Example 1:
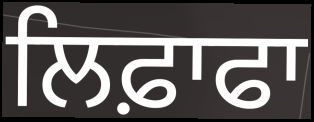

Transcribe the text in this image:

ਲਿਫ਼ਾਫਾ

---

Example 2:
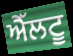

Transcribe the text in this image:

ਐੱਲਟੂ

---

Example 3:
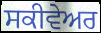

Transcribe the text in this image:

ਸਕੀਵੇਅਰ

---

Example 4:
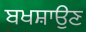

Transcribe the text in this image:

ਬਖਸ਼ਾਉਣ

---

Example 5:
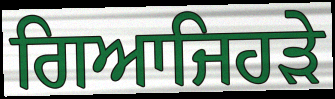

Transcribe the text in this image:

ਗਿਆਜਿਹੜੇ